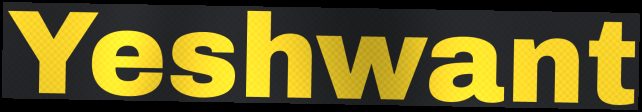
Yeshwant